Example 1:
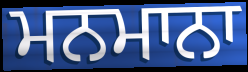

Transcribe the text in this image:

ਮਨਮਾਨਾ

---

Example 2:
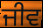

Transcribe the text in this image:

ਜੀਵ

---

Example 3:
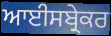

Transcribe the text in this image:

ਆਈਸਬ੍ਰੇਕਰ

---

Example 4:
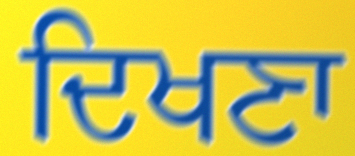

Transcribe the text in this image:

ਦਿਖਣਾ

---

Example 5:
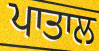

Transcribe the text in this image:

ਪਾਤਾਲ